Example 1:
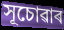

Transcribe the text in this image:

সূচোৱাৰ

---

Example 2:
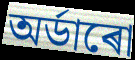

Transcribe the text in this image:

অৰ্ডাৰো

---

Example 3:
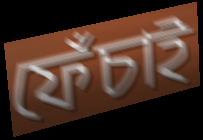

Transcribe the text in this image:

ফেঁচাই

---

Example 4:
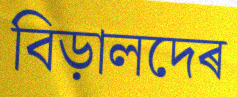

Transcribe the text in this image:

বিড়ালদেৰ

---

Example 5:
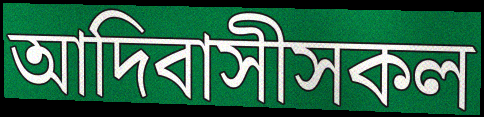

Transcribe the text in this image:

আদিবাসীসকল